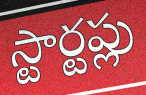
స్టార్టప్లు